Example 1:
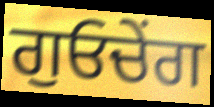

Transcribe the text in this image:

ਗੁਓਚੇਂਗ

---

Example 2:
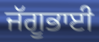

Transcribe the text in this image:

ਜੱਗੂਭਾਈ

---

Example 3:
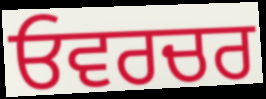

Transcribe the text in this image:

ਓਵਰਚਰ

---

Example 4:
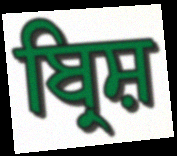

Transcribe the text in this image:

ਬ੍ਰਿਸ਼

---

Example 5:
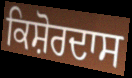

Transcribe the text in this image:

ਕਿਸ਼ੋਰਦਾਸ